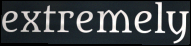
extremely